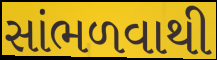
સાંભળવાથી